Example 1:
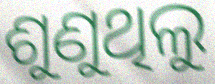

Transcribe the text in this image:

ଶୁଣୁଥିଲୁ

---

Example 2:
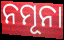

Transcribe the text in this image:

ନମୂନା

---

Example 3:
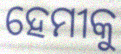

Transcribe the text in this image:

ହେମୀକୁ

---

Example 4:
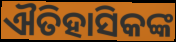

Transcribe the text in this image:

ଐତିହାସିକଙ୍କ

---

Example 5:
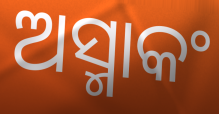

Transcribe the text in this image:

ଅସ୍ମାକଂ